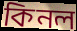
কিনল